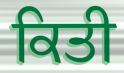
ਕਿਤੀ